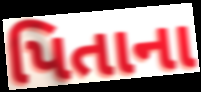
પિતાના